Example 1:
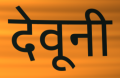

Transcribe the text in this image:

देवूनी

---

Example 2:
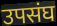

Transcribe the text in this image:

उपसंघ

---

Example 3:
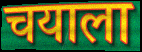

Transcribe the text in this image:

चयाला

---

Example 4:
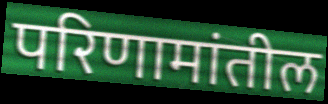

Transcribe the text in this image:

परिणामांतील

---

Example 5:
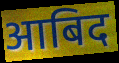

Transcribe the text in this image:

आबिद